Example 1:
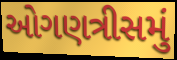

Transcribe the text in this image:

ઓગણત્રીસમું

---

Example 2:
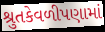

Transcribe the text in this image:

શ્રુતકેવળીપણામાં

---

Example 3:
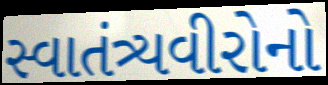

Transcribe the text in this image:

સ્વાતંત્ર્યવીરોનો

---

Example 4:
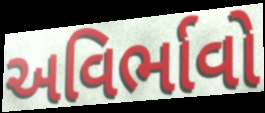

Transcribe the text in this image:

અવિર્ભાવો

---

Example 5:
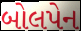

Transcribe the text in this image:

બોલપેન